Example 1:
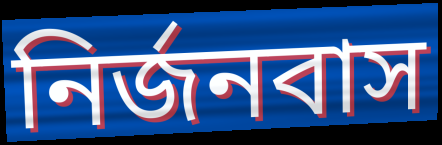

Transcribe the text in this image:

নির্জনবাস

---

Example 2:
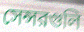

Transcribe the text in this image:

সেন্সরগুলি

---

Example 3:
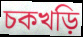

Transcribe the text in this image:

চকখড়ি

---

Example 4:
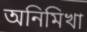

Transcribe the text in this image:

অনিমিখা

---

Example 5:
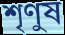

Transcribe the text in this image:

শৃণুষ